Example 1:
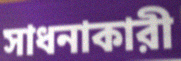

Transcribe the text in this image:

সাধনাকারী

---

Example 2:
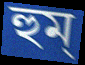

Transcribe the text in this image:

হুম্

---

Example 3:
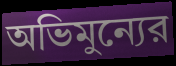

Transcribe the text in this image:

অভিমুন্যের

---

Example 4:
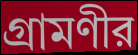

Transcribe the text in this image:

গ্রামণীর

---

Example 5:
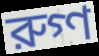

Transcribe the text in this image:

রুগ্ণ